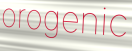
orogenic